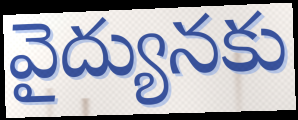
వైద్యునకు